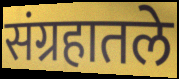
संग्रहातले